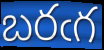
బరఁగ